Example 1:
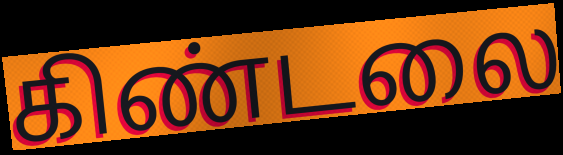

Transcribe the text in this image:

கிண்டலை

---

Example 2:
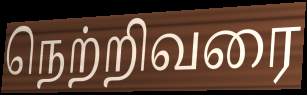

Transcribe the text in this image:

நெற்றிவரை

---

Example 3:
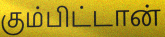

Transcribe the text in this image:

கும்பிட்டான்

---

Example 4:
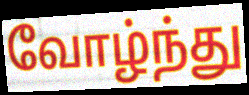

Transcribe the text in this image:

வோழ்ந்து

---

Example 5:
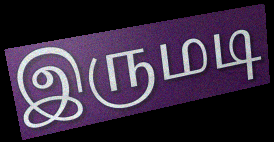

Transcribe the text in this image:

இருமடி